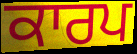
ਕਾਰਪ